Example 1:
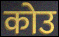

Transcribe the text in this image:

कोउ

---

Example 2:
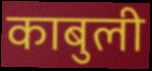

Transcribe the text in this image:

काबुली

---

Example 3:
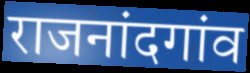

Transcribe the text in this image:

राजनांदगांव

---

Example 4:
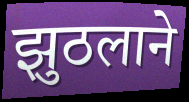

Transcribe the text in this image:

झुठलाने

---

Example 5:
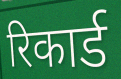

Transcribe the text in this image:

रिकार्ड